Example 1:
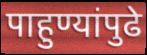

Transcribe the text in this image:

पाहुण्यांपुढे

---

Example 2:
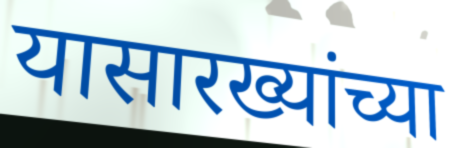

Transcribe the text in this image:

यासारख्यांच्या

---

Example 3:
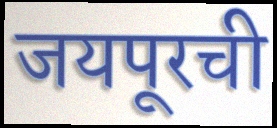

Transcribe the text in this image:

जयपूरची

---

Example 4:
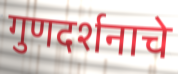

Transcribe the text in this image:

गुणदर्शनाचे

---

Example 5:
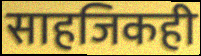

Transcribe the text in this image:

साहजिकही